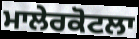
ਮਾਲੇਰਕੋਟਲਾ